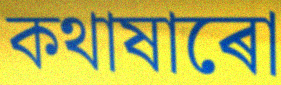
কথাষাৰো